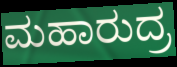
ಮಹಾರುದ್ರ